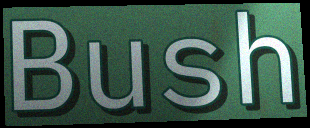
Bush